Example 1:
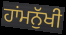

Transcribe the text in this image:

ਹਾਂਮਨੁੱਖੀ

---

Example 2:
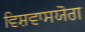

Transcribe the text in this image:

ਵਿਸ਼ਵਾਸਯੋਗ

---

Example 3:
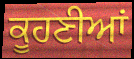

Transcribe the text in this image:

ਕੂਹਣੀਆਂ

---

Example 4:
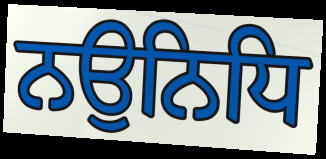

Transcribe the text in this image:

ਨਉਨਿਧਿ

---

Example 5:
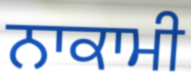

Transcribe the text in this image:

ਨਾਕਾਮੀ